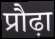
प्रौढ़ा